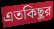
এতকিছুর